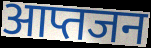
आप्तजन